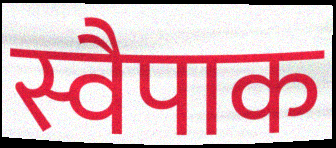
स्वैपाक